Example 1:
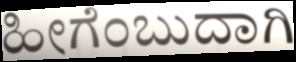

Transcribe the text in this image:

ಹೀಗೆಂಬುದಾಗಿ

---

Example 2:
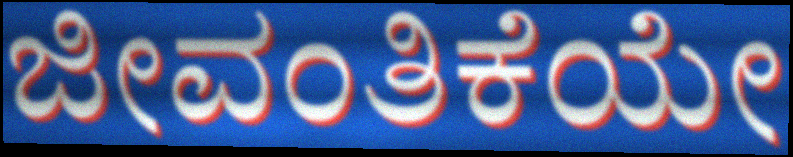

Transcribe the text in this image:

ಜೀವಂತಿಕೆಯೇ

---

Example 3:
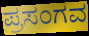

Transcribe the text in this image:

ಪ್ರಸಂಗವ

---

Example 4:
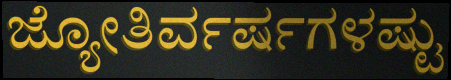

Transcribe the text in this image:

ಜ್ಯೋತಿರ್ವರ್ಷಗಳಷ್ಟು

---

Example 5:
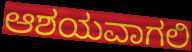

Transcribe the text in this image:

ಆಶಯವಾಗಲಿ